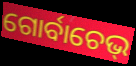
ଗୋର୍ବାଚେଭ୍